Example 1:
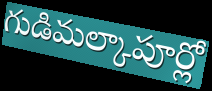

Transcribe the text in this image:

గుడిమల్కాపూర్లో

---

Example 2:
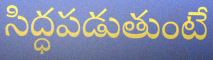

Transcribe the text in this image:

సిద్ధపడుతుంటే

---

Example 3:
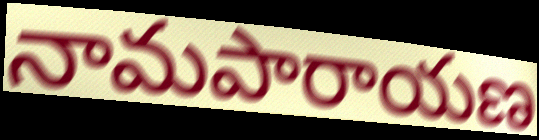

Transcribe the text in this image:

నామపారాయణ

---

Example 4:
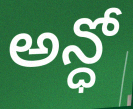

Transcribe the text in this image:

అన్ధో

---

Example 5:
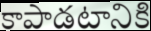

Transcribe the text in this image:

కాపాడటానికి